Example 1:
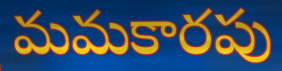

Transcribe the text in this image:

మమకారపు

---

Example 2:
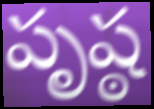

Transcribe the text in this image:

పృష్ఠ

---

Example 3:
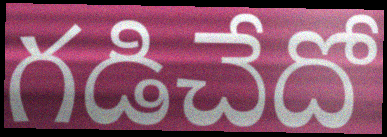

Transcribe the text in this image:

గడిచేదో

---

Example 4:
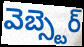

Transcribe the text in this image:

వెబ్స్టెర్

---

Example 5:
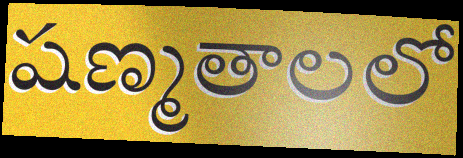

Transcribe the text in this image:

షణ్మతాలలో